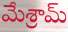
మేశ్రామ్